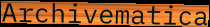
Archivematica